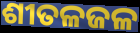
ଶୀତଳଜଳ